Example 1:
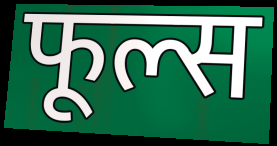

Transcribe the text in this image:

फूल्स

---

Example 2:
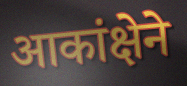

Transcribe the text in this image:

आकांक्षेने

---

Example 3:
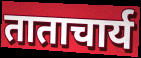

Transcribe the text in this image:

ताताचार्य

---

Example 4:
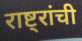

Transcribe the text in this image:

राष्ट्रांची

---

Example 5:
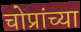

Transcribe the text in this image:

चोप्रांच्या